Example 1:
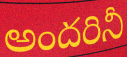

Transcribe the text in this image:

అందరినీ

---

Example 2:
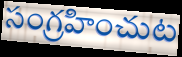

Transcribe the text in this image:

సంగ్రహించుట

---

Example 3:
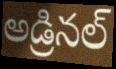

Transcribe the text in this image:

అడ్రినల్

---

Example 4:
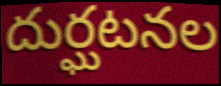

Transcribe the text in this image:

దుర్ఘటనల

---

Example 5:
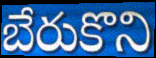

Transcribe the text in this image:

బేరుకొని